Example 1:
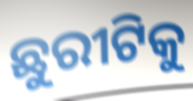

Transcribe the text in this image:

ଛୁରୀଟିକୁ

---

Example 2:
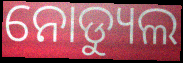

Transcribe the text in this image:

ନୋଡ୍ୟୁଲ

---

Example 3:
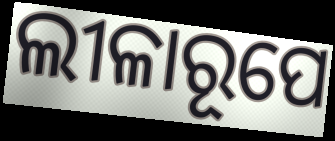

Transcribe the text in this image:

ଲୀଳାରୂପେ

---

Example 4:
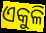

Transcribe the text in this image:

ଏକୁଳି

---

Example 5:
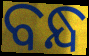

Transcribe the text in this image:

ବନ୍ଧ